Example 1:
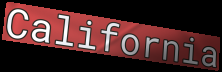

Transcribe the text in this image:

California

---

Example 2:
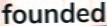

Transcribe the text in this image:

founded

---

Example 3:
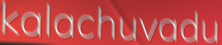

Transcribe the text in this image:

kalachuvadu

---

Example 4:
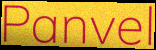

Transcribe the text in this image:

Panvel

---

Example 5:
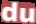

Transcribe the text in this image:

du